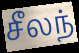
சீலந்